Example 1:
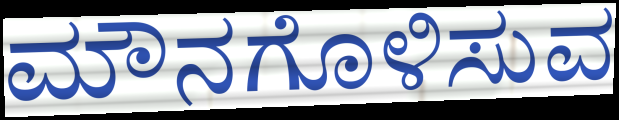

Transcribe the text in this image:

ಮೌನಗೊಳಿಸುವ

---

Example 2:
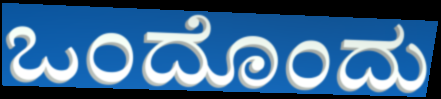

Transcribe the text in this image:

ಒಂದೊಂದು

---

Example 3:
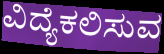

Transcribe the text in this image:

ವಿದ್ಯೆಕಲಿಸುವ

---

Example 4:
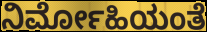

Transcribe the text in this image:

ನಿರ್ಮೋಹಿಯಂತೆ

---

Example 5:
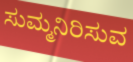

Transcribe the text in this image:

ಸುಮ್ಮನಿರಿಸುವ